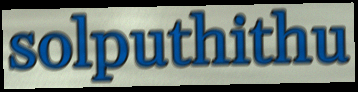
solputhithu